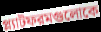
প্ল্যাটফরমগুলোকে